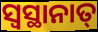
ସ୍ଵସ୍ଥାନାତ୍